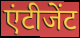
एंटीजेंट